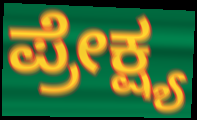
ಪ್ರೇಕ್ಷ್ಯ